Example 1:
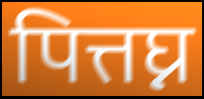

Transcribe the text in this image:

पित्तघ्न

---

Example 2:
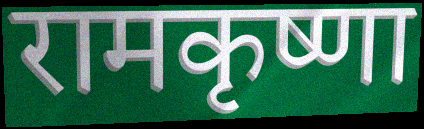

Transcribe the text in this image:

रामकृष्णा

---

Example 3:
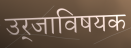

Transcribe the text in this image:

उर्जाविषयक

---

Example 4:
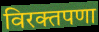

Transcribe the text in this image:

विरक्तपणा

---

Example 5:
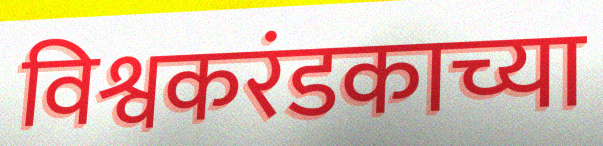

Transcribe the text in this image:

विश्वकरंडकाच्या